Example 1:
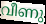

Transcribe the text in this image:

വീണു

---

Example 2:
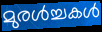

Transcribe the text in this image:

മുരൾച്ചകൾ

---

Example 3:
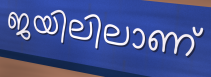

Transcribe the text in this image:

ജയിലിലാണ്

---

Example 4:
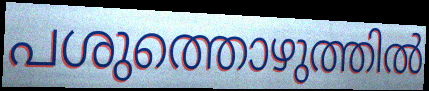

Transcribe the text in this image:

പശുത്തൊഴുത്തിൽ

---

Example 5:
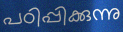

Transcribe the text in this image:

പഠിപ്പിക്കുന്നു